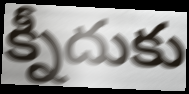
క్నీదుకు